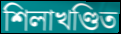
শিলাখণ্ডিত